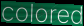
colored